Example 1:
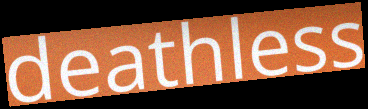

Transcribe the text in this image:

deathless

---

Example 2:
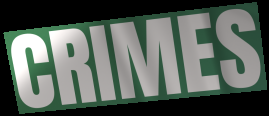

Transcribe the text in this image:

CRIMES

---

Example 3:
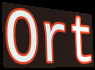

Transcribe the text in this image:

Ort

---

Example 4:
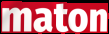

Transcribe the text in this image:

maton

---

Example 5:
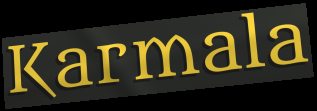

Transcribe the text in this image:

Karmala